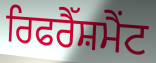
ਰਿਫਰੈੱਸ਼ਮੈਂਟ